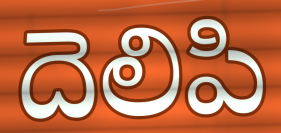
దెలిపి